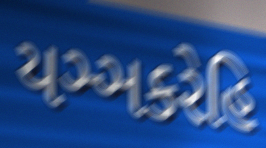
યઞ્ઞકરેહિ